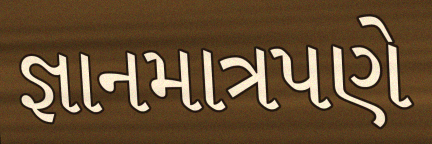
જ્ઞાનમાત્રપણે